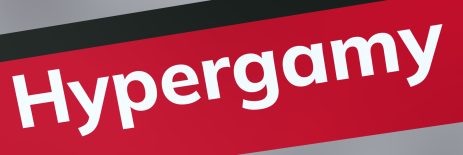
Hypergamy